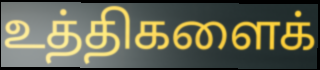
உத்திகளைக்